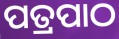
ପତ୍ରପାଠ